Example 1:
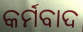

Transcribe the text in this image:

କର୍ମବାଦ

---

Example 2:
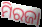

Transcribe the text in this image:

ମିରଜା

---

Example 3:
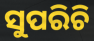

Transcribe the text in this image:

ସୁପରିଚି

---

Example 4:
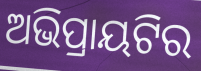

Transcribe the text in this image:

ଅଭିପ୍ରାୟଟିର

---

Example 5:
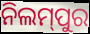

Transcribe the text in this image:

ନିଲମ୍‍ପୁର